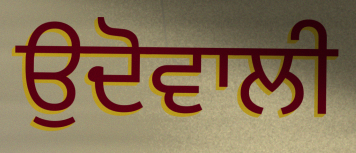
ਉਦੋਵਾਲੀ